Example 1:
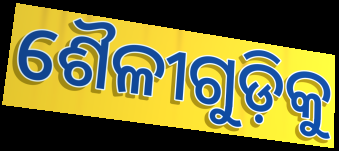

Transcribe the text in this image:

ଶୈଳୀଗୁଡ଼ିକୁ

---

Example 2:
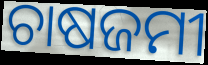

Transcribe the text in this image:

ଚାଷଜମୀ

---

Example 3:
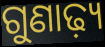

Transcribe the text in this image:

ଗୁଣାଢ଼୍ୟ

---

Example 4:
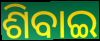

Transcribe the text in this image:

ଶିବାଇ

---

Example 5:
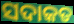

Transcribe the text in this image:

ସଦାକତ